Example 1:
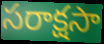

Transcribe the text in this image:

సరాక్షసా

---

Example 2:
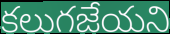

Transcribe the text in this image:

కలుగజేయని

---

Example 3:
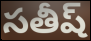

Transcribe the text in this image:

సతీష్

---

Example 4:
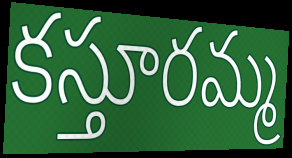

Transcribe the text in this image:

కస్తూరమ్మ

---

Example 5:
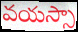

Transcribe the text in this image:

వయస్సా